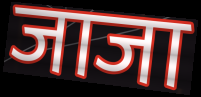
जाजा